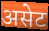
असेट